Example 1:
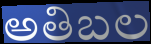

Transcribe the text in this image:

అతిబల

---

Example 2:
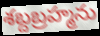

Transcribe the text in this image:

శబ్దబ్రహ్మను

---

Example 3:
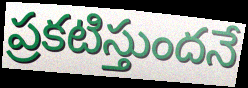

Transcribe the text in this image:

ప్రకటిస్తుందనే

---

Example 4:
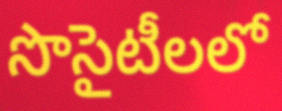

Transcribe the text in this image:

సొసైటీలలో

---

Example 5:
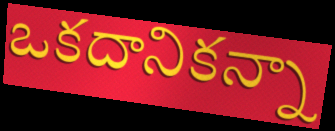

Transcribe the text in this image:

ఒకదానికన్నా